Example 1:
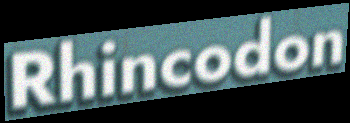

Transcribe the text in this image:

Rhincodon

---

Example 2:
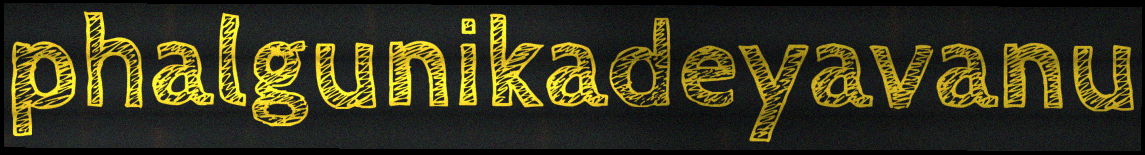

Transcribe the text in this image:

phalgunikadeyavanu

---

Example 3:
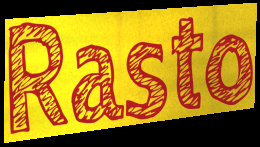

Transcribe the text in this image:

Rasto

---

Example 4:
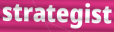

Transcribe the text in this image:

strategist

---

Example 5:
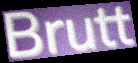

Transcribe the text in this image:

Brutt